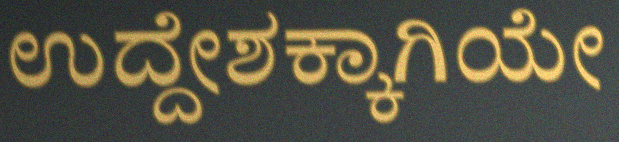
ಉದ್ದೇಶಕ್ಕಾಗಿಯೇ